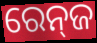
ରେନ୍‍ଜ